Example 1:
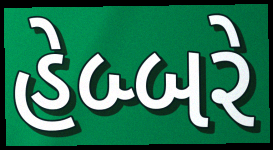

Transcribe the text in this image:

હેબ્બરે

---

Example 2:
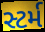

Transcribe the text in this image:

સ્ટર્મ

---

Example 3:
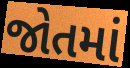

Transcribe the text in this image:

જોતમાં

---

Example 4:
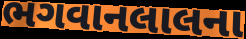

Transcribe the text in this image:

ભગવાનલાલના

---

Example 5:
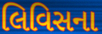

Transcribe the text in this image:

લિવિસના